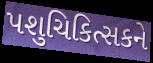
પશુચિકિત્સકને